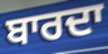
ਬਾਰਦਾ